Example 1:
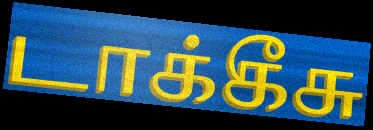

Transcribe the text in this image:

டாக்கீசு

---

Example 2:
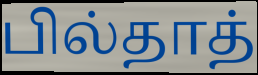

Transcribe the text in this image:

பில்தாத்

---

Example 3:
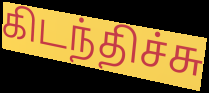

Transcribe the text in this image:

கிடந்திச்சு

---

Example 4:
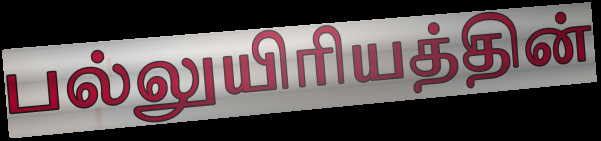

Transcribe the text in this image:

பல்லுயிரியத்தின்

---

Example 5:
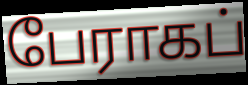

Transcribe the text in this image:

பேராகப்